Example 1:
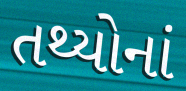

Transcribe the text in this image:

તથ્યોનાં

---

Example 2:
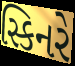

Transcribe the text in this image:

સ્કિનરે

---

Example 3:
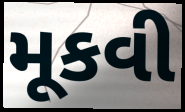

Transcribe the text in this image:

મૂકવી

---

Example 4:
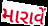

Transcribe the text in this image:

મારાવેં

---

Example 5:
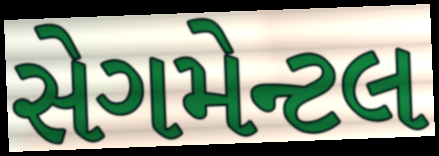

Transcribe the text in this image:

સેગમેન્ટલ